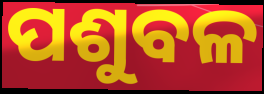
ପଶୁବଳ